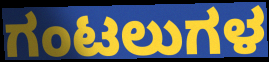
ಗಂಟಲುಗಳ